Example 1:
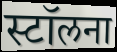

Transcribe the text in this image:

स्टॉलना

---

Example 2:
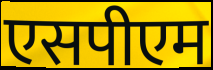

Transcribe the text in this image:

एसपीएम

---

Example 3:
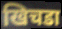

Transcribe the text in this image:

खिचडा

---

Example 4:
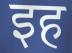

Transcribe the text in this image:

इह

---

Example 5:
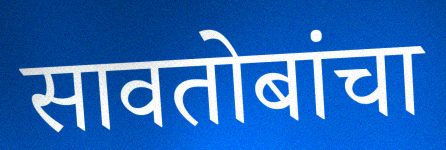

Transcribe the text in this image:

सावतोबांचा